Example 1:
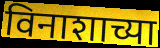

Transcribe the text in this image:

विनाशाच्या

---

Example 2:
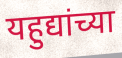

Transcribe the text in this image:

यहुद्यांच्या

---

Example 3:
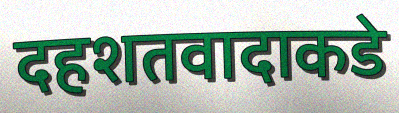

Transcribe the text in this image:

दहशतवादाकडे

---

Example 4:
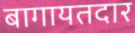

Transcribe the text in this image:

बागायतदार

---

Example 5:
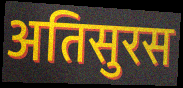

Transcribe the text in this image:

अतिसुरस